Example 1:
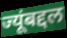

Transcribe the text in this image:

ज्यूंबद्दल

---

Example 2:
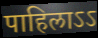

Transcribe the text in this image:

पाहिलाऽऽ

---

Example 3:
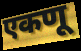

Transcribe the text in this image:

एकणू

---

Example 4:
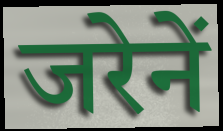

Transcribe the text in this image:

जरेनें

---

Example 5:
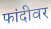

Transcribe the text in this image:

फांदीवर